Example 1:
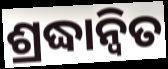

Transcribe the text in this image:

ଶ୍ରଦ୍ଧାନ୍ୱିତ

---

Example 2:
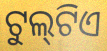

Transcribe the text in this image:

ଟୁଲ୍‍ଟିଏ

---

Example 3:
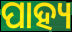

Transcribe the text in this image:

ପାହ୍ୟ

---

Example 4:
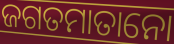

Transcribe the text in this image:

ଜଗତମାତାନୋ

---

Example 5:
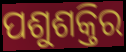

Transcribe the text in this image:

ପଶୁଶକ୍ତିର